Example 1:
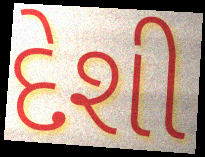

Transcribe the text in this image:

દેશી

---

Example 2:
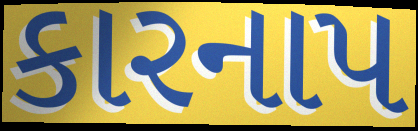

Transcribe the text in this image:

કારનાપ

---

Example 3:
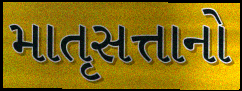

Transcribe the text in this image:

માતૃસત્તાનો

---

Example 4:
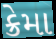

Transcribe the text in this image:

ક્રેમા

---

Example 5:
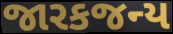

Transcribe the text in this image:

જારકજન્ય